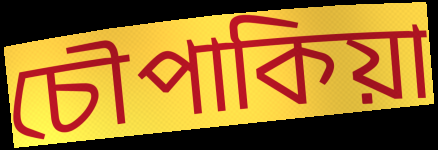
চৌপাকিয়া